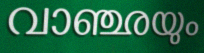
വാഞ്ഛയും